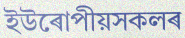
ইউৰোপীয়সকলৰ